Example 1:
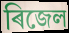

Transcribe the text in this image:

ৰিজেল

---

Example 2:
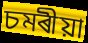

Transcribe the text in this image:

চমৰীয়া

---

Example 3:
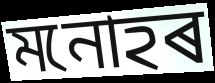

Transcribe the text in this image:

মনোহৰ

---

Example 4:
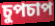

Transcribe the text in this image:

চুপচাপ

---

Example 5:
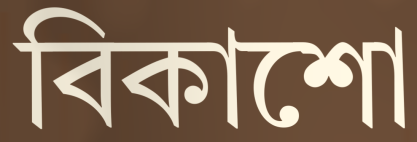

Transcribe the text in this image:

বিকাশো